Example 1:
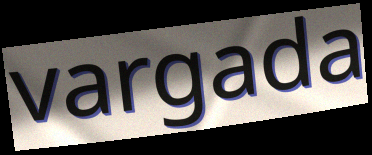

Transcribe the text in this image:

vargada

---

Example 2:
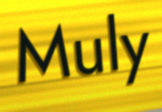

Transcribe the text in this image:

Muly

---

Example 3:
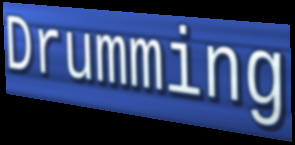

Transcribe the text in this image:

Drumming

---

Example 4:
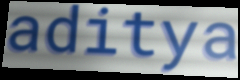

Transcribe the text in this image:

aditya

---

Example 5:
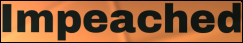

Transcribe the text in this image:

Impeached